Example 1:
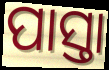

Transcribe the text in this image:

ପାସ୍ତା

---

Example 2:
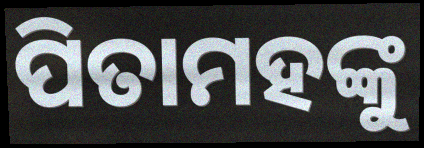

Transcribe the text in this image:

ପିତାମହଙ୍କୁ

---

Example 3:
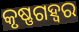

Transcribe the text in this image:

କୃଷ୍ଣଗହ୍ୱର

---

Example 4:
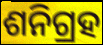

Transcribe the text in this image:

ଶନିଗ୍ରହ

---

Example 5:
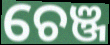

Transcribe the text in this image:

ଚେଞ୍ଜ